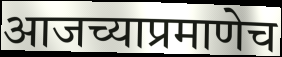
आजच्याप्रमाणेच